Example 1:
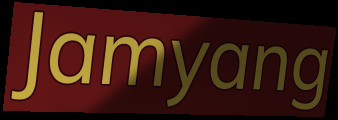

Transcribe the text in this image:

Jamyang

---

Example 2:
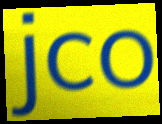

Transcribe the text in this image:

jco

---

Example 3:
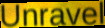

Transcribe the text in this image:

Unravel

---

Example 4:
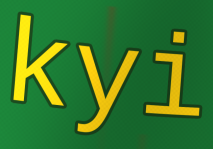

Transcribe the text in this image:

kyi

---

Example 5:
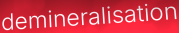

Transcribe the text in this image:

demineralisation